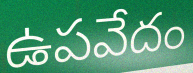
ఉపవేదం